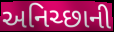
અનિચ્છાની